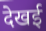
देखई